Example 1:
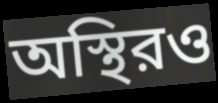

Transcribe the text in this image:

অস্থিরও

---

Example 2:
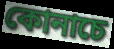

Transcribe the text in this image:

কোনাচে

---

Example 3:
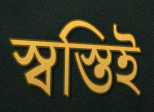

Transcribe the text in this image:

স্বস্তিই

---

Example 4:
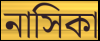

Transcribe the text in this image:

নাসিকা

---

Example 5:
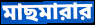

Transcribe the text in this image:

মাছমারার